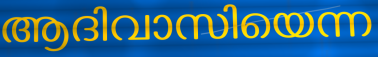
ആദിവാസിയെന്ന